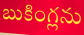
బుకింగ్లను